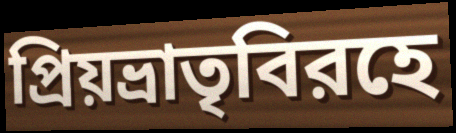
প্রিয়ভ্রাতৃবিরহে